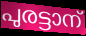
പുരട്ടാന്